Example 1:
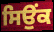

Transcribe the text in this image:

ਸਿਉਂਕ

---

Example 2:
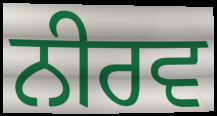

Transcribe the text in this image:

ਨੀਰਵ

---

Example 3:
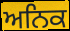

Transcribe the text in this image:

ਅਨਿਕ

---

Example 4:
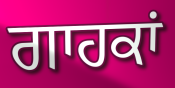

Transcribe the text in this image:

ਗਾਹਕਾਂ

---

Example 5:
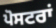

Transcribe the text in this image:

ਪੋਸਟਰਾਂ